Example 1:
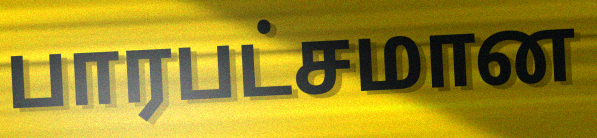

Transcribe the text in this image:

பாரபட்சமான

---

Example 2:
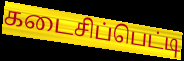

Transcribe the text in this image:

கடைசிப்பெட்டி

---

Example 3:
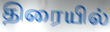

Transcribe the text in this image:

திரையில்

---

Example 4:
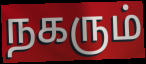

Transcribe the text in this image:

நகரும்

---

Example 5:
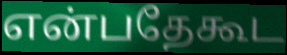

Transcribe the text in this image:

என்பதேகூட